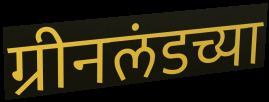
ग्रीनलंडच्या